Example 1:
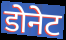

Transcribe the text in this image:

डोनेट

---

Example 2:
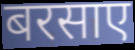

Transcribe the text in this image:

बरसाए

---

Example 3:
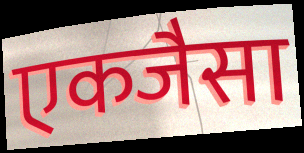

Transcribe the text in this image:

एकजैसा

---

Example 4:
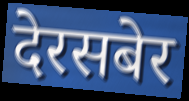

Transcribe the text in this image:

देरसबेर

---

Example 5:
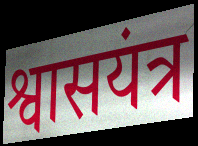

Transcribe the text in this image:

श्वासयंत्र